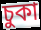
চুকা